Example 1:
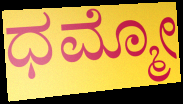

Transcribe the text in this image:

ಧಮ್ಮೋ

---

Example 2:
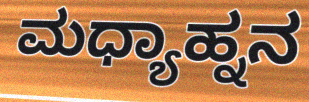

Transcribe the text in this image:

ಮಧ್ಯಾಹ್ನನ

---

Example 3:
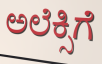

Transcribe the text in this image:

ಅಲೆಕ್ಸಿಗೆ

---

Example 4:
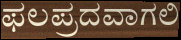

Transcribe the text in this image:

ಫಲಪ್ರದವಾಗಲಿ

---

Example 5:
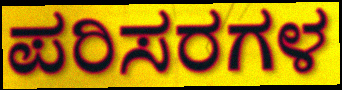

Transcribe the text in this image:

ಪರಿಸರಗಳ